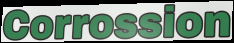
Corrossion